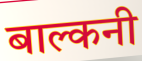
बाल्कनी